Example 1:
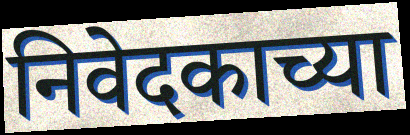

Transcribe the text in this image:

निवेदकाच्या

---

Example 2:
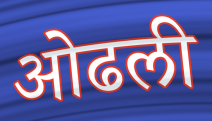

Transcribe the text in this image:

ओढली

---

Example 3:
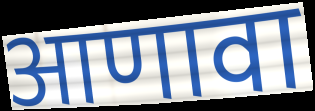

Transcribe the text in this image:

आणावा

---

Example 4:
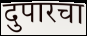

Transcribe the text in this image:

दुपारचा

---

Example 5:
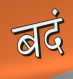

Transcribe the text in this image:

बदं